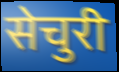
सेचुरी